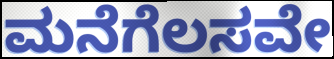
ಮನೆಗೆಲಸವೇ